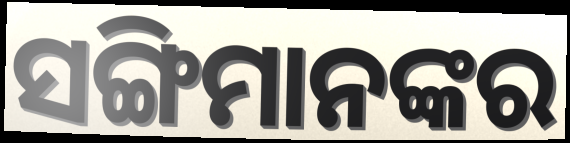
ସଙ୍ଗିମାନଙ୍କର